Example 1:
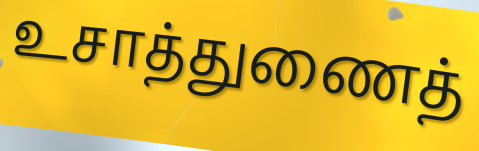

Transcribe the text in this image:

உசாத்துணைத்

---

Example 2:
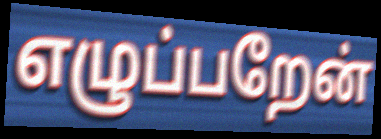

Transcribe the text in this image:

எழுப்பறேன்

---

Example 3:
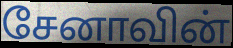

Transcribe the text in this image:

சேனாவின்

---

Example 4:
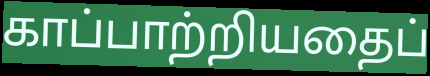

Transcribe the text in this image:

காப்பாற்றியதைப்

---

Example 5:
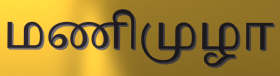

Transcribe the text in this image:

மணிமுழா